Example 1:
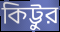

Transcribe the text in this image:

কিট্টুর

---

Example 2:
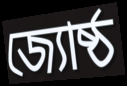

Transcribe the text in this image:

জ্যোষ্ঠ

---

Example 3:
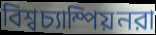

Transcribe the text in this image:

বিশ্বচ্যাম্পিয়নরা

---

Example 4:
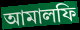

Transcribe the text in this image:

আমালফি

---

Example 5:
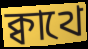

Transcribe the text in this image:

ক্বাথে